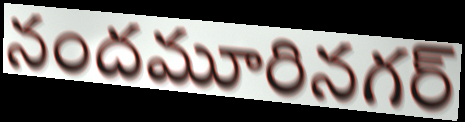
నందమూరినగర్